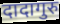
दादागुरु